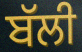
ਬੱਲੀ